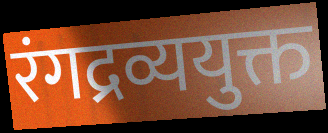
रंगद्रव्ययुक्त